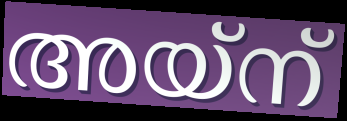
അയ്ന്